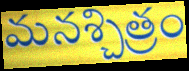
మనశ్చిత్రం